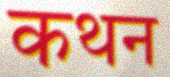
कथन